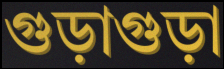
গুড়াগুড়া